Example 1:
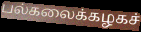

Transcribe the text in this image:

பல்கலைக்கழகச்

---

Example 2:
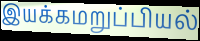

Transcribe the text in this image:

இயக்கமறுப்பியல்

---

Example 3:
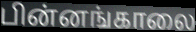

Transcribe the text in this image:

பின்னங்காலை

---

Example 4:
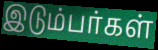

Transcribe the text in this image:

இடும்பர்கள்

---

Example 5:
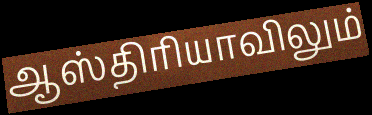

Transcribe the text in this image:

ஆஸ்திரியாவிலும்